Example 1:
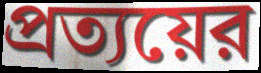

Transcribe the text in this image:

প্রত্যয়ের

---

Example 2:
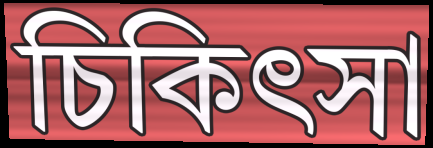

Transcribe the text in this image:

চিকিৎসা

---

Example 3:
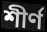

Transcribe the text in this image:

শীর্ণ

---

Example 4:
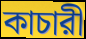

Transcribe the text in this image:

কাচারী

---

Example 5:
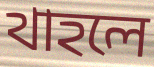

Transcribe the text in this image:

থাহলে